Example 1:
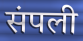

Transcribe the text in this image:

संपली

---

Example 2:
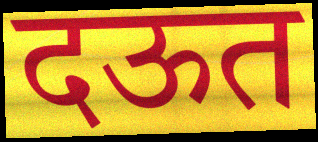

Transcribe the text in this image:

दऊत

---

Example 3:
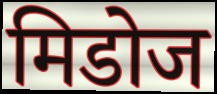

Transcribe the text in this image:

मिडोज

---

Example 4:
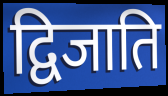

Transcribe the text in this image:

द्विजाति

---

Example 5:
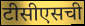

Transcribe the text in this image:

टीसीएसची